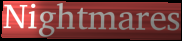
Nightmares